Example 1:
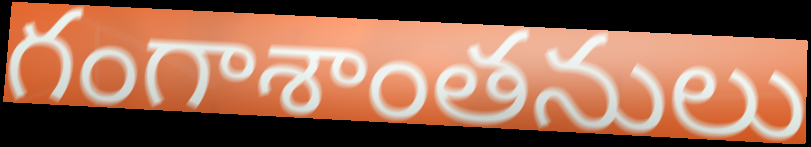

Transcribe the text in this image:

గంగాశాంతనులు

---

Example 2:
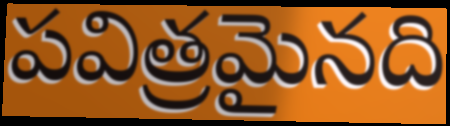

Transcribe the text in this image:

పవిత్రమైనది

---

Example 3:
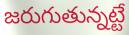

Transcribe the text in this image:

జరుగుతున్నట్టే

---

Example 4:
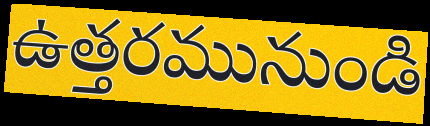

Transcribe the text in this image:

ఉత్తరమునుండి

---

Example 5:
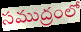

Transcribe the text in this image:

సముద్రంలో